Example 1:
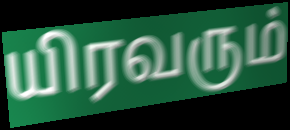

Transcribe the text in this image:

யிரவரும்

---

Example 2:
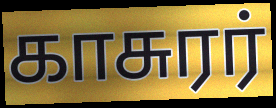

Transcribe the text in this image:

காசுரர்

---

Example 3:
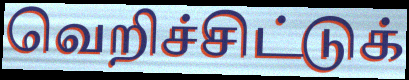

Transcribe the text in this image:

வெறிச்சிட்டுக்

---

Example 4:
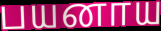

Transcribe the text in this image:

பயனாய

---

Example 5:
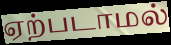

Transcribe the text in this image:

ஏற்படாமல்